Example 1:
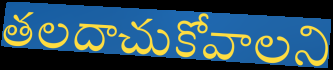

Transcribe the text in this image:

తలదాచుకోవాలని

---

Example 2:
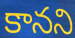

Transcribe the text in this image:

కానని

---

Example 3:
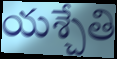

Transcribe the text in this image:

యశ్చేతి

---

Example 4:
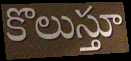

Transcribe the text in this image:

కొలుస్తూ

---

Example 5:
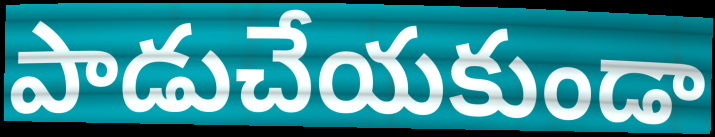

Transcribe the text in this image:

పాడుచేయకుండా